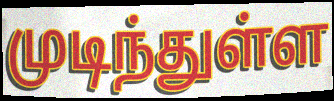
முடிந்துள்ள